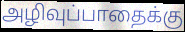
அழிவுப்பாதைக்கு